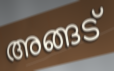
അങ്ങട്